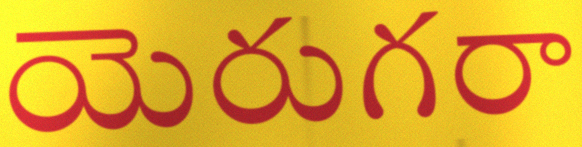
యెరుగరా